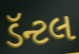
ડૅન્ટલ